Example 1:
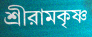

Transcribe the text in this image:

শ্রীরামকৃষ্ণ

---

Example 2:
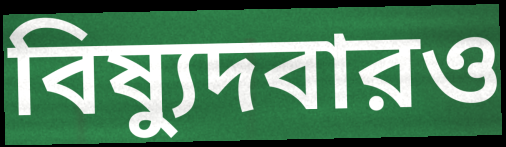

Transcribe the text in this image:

বিষ্যুদবারও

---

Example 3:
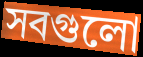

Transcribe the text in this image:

সবগুলো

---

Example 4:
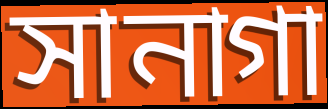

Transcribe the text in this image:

সানাগা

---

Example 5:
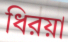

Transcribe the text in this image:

ধিরয়া